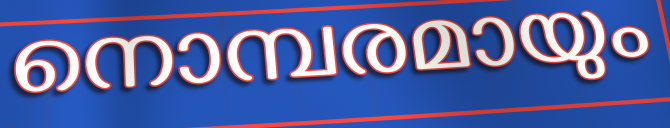
നൊമ്പരമായും